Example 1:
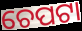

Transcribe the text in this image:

ଚେପଟା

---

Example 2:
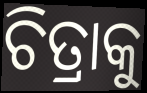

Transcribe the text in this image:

ଚିତ୍ରାକୁ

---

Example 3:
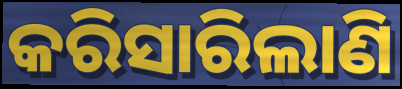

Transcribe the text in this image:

କରିସାରିଲାଣି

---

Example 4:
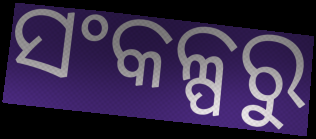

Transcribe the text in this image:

ସଂକଳ୍ପରୁ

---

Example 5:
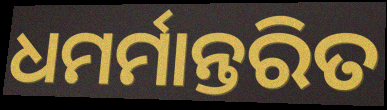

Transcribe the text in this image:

ଧମର୍ମାନ୍ତରିତ